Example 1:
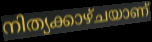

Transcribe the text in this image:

നിത്യക്കാഴ്ചയാണ്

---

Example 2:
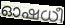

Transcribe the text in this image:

ഓഷധീ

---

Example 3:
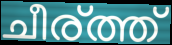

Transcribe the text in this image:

ചീര്ത്ത്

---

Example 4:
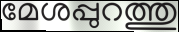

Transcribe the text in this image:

മേശപ്പുറത്തു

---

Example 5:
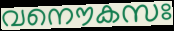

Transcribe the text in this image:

വനൌകസഃ